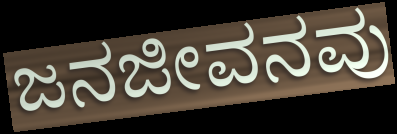
ಜನಜೀವನವು